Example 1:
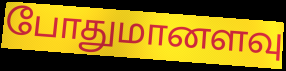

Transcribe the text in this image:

போதுமானளவு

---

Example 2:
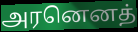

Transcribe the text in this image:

அரனெனத்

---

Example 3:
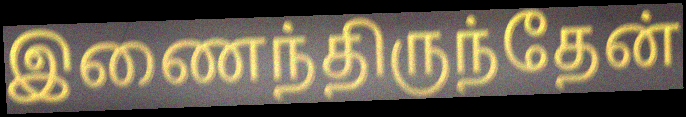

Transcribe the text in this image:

இணைந்திருந்தேன்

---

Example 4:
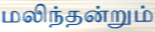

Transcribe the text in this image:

மலிந்தன்றும்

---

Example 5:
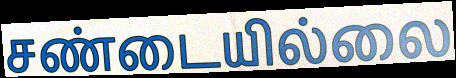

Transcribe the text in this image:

சண்டையில்லை